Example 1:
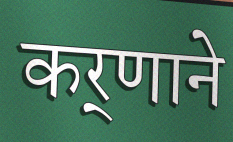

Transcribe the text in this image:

कर्णाने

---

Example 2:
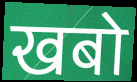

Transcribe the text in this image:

खबो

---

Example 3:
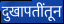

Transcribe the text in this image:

दुखापतींतून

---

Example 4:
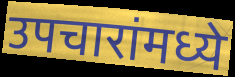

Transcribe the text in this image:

उपचारांमध्ये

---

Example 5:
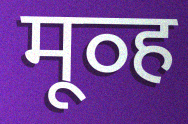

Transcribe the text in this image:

मूव्ह